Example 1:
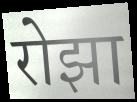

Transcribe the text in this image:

रोझा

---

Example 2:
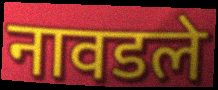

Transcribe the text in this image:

नावडले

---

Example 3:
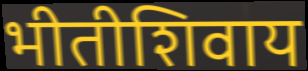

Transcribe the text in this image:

भीतीशिवाय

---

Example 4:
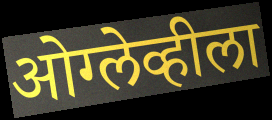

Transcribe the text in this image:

ओग्लेव्हीला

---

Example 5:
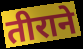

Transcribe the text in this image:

तीराने